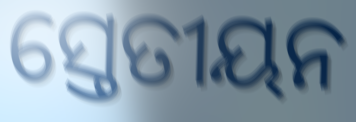
ସ୍ତେତୀୟନ